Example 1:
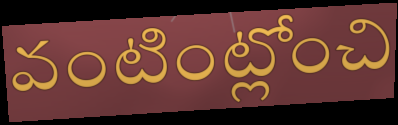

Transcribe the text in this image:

వంటింట్లోంచి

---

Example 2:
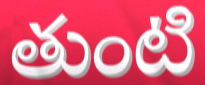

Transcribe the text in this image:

తుంటి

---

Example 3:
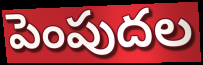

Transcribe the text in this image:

పెంపుదల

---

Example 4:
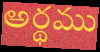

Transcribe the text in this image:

అర్థము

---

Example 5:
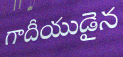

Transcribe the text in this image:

గాదీయుడైన